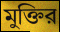
মুক্তির